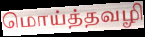
மொய்த்தவழி